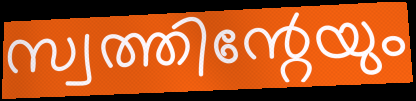
സ്വത്തിന്റേയും